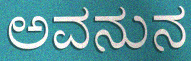
ಅವನುನ